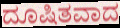
ದೂಷಿತವಾದ